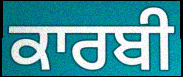
ਕਾਰਬੀ